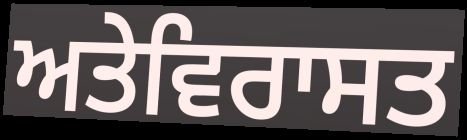
ਅਤੇਵਿਰਾਸਤ